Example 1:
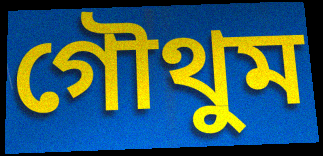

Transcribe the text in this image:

গৌথুম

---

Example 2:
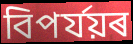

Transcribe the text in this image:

বিপৰ্যয়ৰ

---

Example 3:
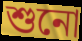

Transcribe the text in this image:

শুনো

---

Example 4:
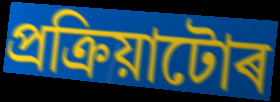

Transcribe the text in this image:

প্ৰক্ৰিয়াটোৰ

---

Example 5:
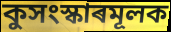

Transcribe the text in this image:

কুসংস্কাৰমূলক